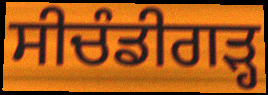
ਸੀਚੰਡੀਗੜ੍ਹ